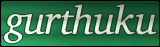
gurthuku